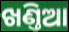
ଖଣ୍ତିଆ